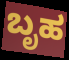
ಬೃಹ